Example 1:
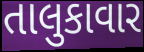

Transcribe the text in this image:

તાલુકાવાર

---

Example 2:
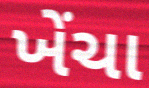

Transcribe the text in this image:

ખેંચા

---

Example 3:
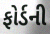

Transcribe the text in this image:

ફોર્ડની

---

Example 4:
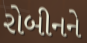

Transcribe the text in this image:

રોબીનને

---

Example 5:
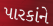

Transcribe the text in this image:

પારકાંને